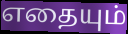
எதையும்